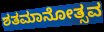
ಶತಮಾನೋತ್ಸವ